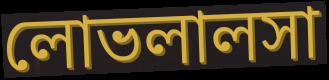
লোভলালসা